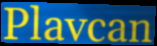
Plavcan